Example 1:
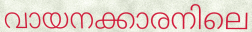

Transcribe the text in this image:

വായനക്കാരനിലെ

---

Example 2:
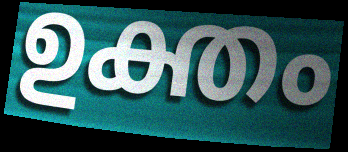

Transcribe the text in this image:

ഉക്തം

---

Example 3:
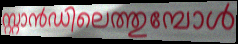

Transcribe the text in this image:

സ്റ്റാൻഡിലെത്തുമ്പോൾ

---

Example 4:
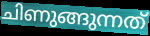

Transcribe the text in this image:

ചിണുങ്ങുന്നത്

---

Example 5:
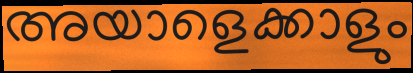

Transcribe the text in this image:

അയാളെക്കാളും